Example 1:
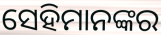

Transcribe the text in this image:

ସେହିମାନଙ୍କର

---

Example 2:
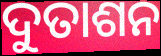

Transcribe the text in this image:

ଦୁତାଶନ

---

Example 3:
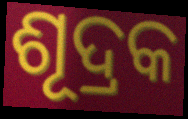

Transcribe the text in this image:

ଶୂଦ୍ରକ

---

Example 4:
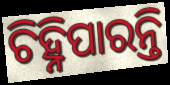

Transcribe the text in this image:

ଚିହ୍ନିପାରନ୍ତି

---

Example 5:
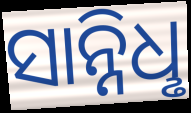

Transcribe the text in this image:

ସାନ୍ନିଧୢ